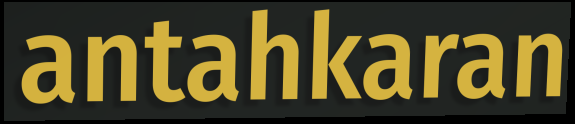
antahkaran